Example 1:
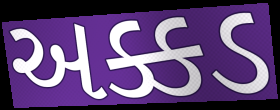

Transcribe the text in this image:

અક્કડ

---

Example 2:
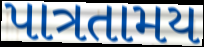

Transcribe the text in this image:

પાત્રતામય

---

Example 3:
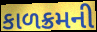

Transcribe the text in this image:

કાળક્રમની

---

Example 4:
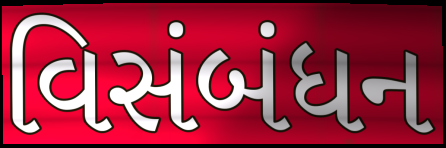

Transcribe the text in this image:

વિસંબંધન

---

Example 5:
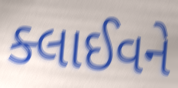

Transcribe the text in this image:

ક્લાઈવને